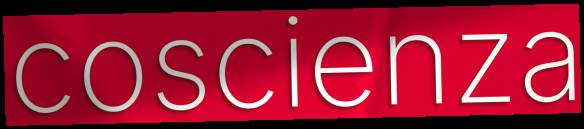
coscienza